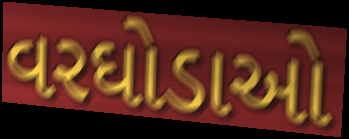
વરઘોડાઓ